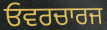
ਓਵਰਚਾਰਜ